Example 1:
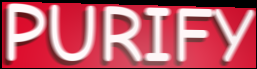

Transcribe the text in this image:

PURIFY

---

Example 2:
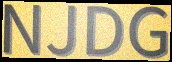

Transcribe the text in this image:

NJDG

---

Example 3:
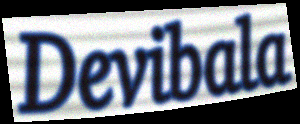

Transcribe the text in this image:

Devibala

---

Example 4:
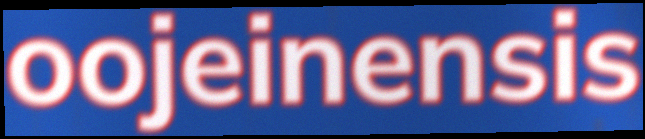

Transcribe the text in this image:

oojeinensis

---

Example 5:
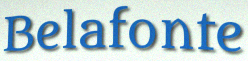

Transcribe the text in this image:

Belafonte